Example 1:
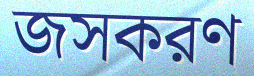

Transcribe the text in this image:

জসকরণ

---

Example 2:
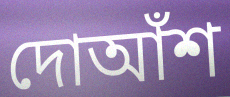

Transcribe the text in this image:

দোআঁশ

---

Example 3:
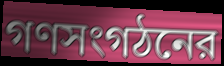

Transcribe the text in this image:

গণসংগঠনের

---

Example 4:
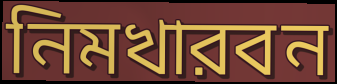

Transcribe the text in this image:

নিমখারবন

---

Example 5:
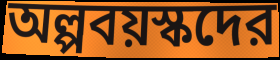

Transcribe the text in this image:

অল্পবয়স্কদের